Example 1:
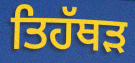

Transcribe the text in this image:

ਤਿਹੱਥੜ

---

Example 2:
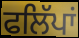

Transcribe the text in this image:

ਫਲਿੱਪਾਂ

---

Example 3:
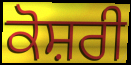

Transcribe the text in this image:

ਕੋਸ਼ਰੀ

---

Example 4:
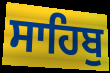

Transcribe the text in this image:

ਸਾਹਿਬੁ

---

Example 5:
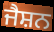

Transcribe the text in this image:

ਜੈਸ਼ਨ